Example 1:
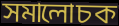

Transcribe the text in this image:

সমালোচক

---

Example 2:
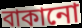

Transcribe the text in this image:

বাকানো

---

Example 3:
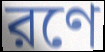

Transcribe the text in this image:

রণে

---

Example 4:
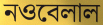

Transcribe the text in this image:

নওবেলাল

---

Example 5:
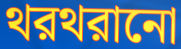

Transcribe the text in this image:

থরথরানো